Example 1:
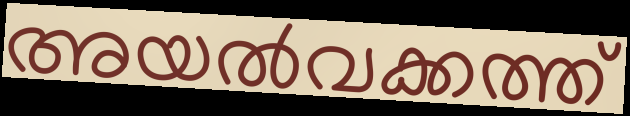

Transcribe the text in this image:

അയൽവക്കത്ത്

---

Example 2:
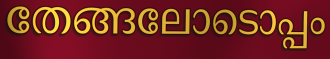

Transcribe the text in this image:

തേങ്ങലോടൊപ്പം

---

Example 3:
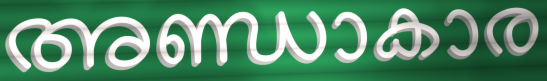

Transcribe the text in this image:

അണ്ഡാകാര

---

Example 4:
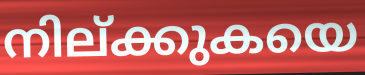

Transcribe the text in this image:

നില്ക്കുകയെ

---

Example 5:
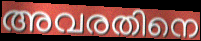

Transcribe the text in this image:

അവരതിനെ